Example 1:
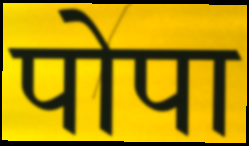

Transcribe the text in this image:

पोपा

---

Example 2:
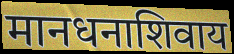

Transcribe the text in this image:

मानधनाशिवाय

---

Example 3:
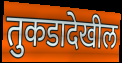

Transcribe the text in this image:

तुकडादेखील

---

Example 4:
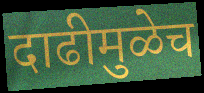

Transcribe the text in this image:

दाढीमुळेच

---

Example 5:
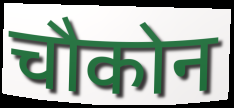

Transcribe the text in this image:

चौकोन